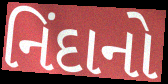
નિંદાનો